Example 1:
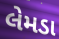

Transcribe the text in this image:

લેમડા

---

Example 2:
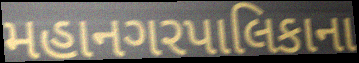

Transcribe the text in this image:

મહાનગરપાલિકાના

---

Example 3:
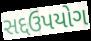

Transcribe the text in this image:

સદ્દઉપયોગ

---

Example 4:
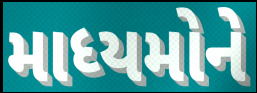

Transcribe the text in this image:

માધ્યમોને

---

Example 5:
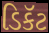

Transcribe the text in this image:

ડિકૅટ